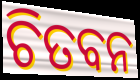
ଚିତବନ